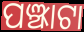
ପଞ୍ଝାଟା